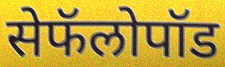
सेफॅलोपॉड